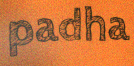
padha